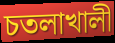
চতলাখালী